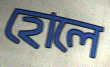
হোলে